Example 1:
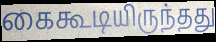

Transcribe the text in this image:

கைகூடியிருந்தது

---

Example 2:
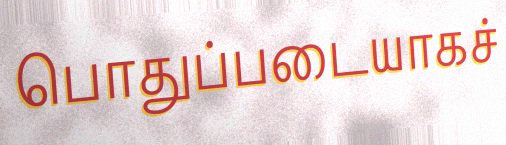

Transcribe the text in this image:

பொதுப்படையாகச்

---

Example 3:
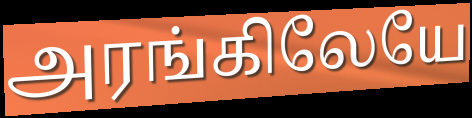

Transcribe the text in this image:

அரங்கிலேயே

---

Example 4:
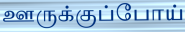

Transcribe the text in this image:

ஊருக்குப்போய்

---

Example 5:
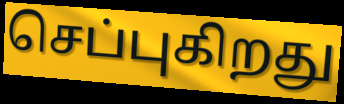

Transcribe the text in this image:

செப்புகிறது